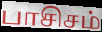
பாசிசம்